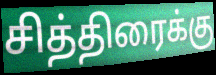
சித்திரைக்கு